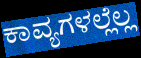
ಕಾವ್ಯಗಳಲ್ಲೆಲ್ಲ